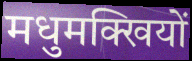
मधुमक्खियों